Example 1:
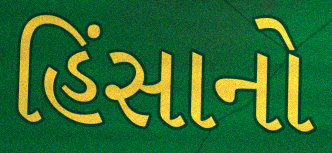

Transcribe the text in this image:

હિંસાનો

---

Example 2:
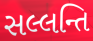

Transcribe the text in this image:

સલ્લન્તિ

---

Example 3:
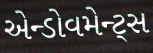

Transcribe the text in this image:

એન્ડોવમેન્ટ્સ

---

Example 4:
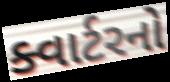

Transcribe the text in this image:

ક્વાર્ટરનો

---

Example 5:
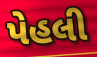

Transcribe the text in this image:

પેહલી